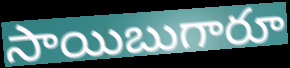
సాయిబుగారూ